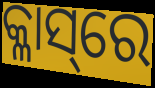
କ୍ଳାସ୍‌ରେ